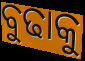
ବୁଢାକୁ